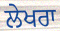
ਲੇਖਰਾ